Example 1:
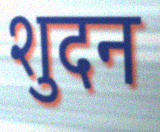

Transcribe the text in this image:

शुदन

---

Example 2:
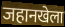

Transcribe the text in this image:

जहानखेला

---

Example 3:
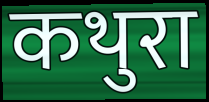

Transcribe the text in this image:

कथुरा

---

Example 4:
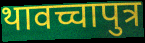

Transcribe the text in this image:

थावच्चापुत्र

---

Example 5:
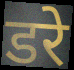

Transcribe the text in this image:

डरे